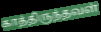
காத்திருந்தவள்